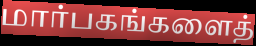
மார்பகங்களைத்